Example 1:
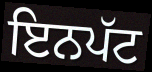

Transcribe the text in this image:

ਇਨਪੱਟ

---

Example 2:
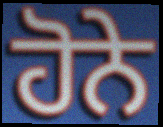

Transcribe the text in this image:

ਹੋਨੇ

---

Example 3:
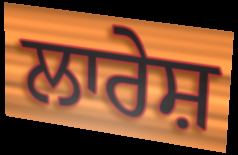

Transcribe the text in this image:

ਲਾਰੇਸ਼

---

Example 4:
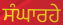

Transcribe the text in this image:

ਸੰਘਾਰਹੇ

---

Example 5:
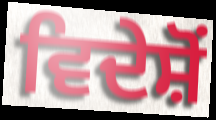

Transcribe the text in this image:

ਵਿਦੇਸ਼ੋਂ